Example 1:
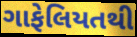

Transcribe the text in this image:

ગાફેલિયતથી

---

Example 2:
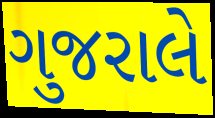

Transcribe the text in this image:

ગુજરાલે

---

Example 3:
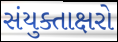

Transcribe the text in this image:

સંયુક્તાક્ષરો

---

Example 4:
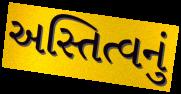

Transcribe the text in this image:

અસ્તિત્વનું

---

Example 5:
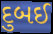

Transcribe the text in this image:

દુબઈ